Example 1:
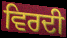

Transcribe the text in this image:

ਵਿਰਦੀ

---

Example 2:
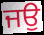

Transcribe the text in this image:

ਜਉ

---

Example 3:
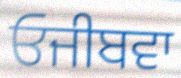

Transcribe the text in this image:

ਓਜੀਬਵਾ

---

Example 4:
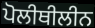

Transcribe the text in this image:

ਪੋਲੀਥੀਲੀਨ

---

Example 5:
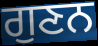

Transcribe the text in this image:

ਗੁਣਨ